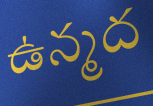
ఉన్మద